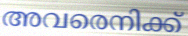
അവരെനിക്ക്